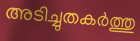
അടിച്ചുതകർത്തു